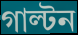
গাল্টন